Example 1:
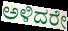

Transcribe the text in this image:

ಅಳಿದರೇ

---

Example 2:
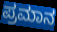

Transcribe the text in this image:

ಪ್ರಮಾನ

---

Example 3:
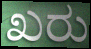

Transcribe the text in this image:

ಖರು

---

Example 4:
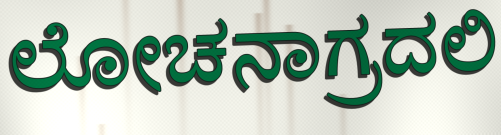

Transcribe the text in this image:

ಲೋಚನಾಗ್ರದಲಿ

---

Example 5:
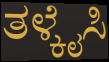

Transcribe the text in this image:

ತಳ್ಕೈಸಿ